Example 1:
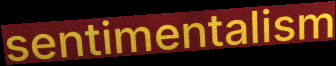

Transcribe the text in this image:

sentimentalism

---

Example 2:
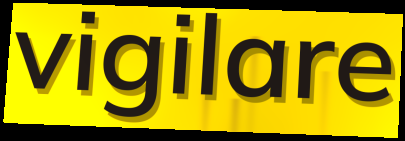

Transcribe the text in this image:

vigilare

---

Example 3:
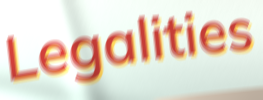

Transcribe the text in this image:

Legalities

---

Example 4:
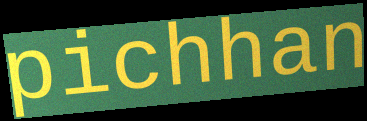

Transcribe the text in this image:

pichhan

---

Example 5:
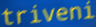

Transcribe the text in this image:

triveni